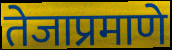
तेजाप्रमाणे